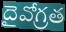
దైవోగ్రత